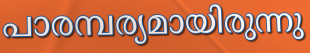
പാരമ്പര്യമായിരുന്നു